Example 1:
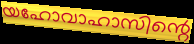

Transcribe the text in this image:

യഹോവാഹാസിന്റെ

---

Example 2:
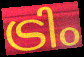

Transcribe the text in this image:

ട്രിം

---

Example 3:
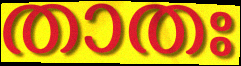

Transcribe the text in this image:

താതഃ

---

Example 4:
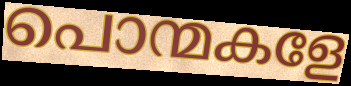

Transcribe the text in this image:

പൊന്മകളേ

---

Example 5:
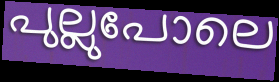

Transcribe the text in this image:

പുല്ലുപോലെ